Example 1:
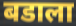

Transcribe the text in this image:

बडाला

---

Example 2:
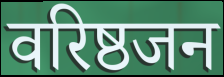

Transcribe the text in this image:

वरिष्ठजन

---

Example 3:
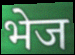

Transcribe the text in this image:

भेज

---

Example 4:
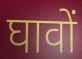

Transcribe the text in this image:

घावों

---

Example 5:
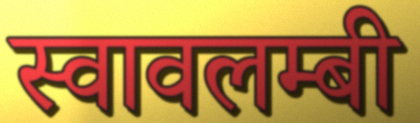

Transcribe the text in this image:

स्वावलम्बी